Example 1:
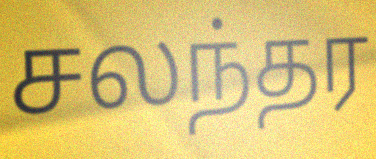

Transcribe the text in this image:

சலந்தர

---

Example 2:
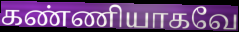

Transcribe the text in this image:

கண்ணியாகவே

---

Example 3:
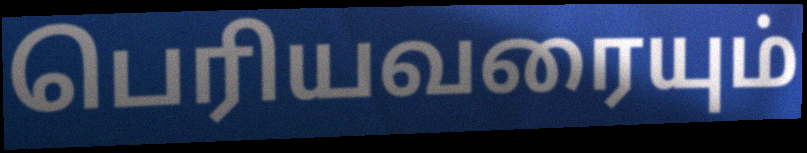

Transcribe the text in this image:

பெரியவரையும்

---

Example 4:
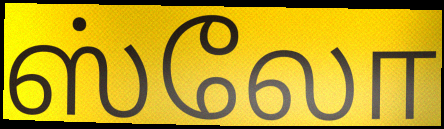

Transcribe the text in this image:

ஸ்லோ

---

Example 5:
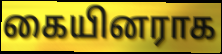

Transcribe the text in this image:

கையினராக